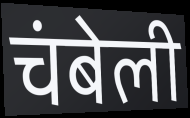
चंबेली